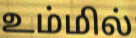
உம்மில்